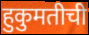
हुकुमतीची